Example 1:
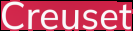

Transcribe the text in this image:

Creuset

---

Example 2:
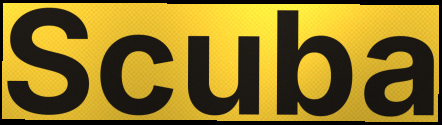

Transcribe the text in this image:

Scuba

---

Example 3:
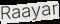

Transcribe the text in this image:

Raayar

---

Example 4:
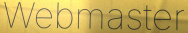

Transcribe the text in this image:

Webmaster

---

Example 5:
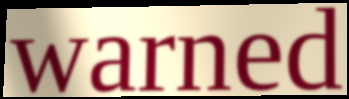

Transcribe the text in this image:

warned